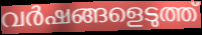
വർഷങ്ങളെടുത്ത്